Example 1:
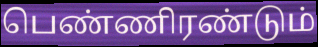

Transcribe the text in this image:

பெண்ணிரண்டும்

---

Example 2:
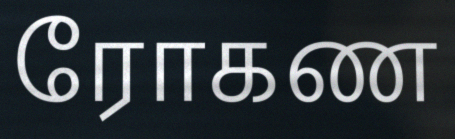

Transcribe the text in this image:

ரோகண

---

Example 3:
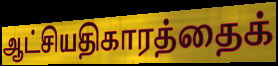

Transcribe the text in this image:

ஆட்சியதிகாரத்தைக்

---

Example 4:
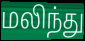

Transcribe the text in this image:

மலிந்து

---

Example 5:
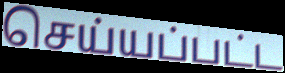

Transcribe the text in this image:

செய்யப்பட்ட